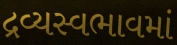
દ્રવ્યસ્વભાવમાં